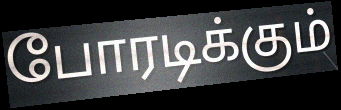
போரடிக்கும்